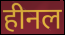
हीनल